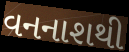
વનનાશથી